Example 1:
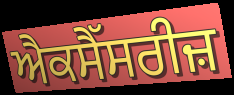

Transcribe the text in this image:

ਐਕਸੈੱਸਰੀਜ਼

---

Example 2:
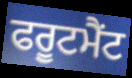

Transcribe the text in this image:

ਫਰੂਟਮੈਂਟ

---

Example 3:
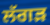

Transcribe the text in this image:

ਲੱਗੜ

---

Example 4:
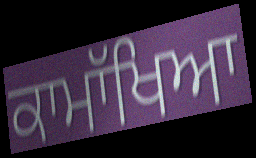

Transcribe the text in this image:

ਕਾਮਾੱਖਿਆ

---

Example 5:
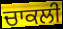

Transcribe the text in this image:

ਚਾਕਲੀ